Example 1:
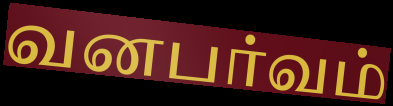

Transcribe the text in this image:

வனபர்வம்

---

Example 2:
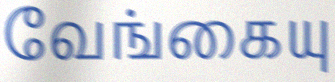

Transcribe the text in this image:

வேங்கையு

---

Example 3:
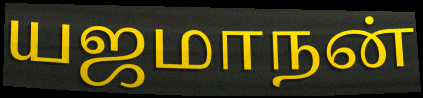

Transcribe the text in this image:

யஜமாநன்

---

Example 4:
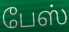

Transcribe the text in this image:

பேஸ்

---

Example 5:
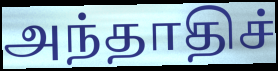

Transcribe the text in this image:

அந்தாதிச்